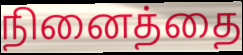
நினைத்தை